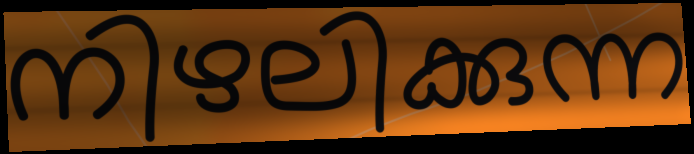
നിഴലിക്കുന്ന